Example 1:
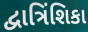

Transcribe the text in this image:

દ્વાત્રિંશિકા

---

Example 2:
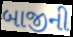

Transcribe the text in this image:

બાજીની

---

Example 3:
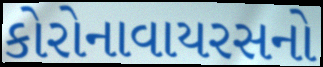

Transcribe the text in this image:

કોરોનાવાયરસનો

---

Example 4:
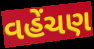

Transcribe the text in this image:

વહેંચણ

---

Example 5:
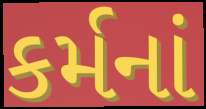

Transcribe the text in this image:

કર્મનાં